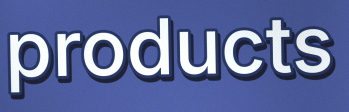
products